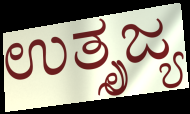
ಉತ್ಸೃಜ್ಯ